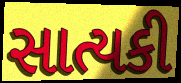
સાત્યકી